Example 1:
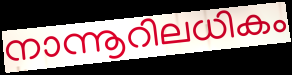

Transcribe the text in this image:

നാന്നൂറിലധികം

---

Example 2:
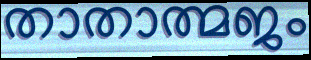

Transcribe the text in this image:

താതാത്മജം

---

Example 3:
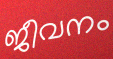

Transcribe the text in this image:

ജീവനം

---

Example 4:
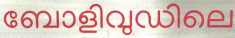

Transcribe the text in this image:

ബോളിവുഡിലെ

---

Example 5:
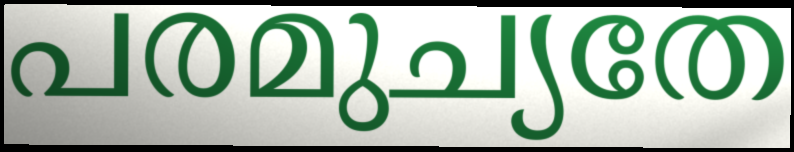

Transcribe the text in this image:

പരമുച്യതേ